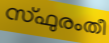
സ്ഫുരംതീ